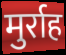
मुर्राह